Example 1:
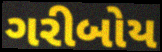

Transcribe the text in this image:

ગરીબોય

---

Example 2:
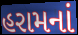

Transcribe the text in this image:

હરામનાં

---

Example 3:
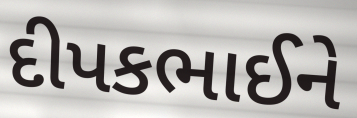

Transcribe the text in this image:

દીપકભાઈને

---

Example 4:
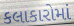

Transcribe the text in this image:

કલાકારોમાં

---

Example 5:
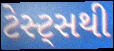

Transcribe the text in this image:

ટેસ્ટ્સથી